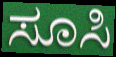
ಸೂಸಿ